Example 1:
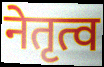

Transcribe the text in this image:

नेतृत्‍व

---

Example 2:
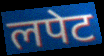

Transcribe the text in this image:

लपेट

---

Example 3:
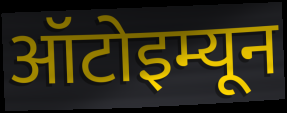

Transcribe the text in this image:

ऑटोइम्यून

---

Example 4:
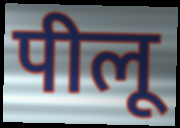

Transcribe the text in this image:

पीलू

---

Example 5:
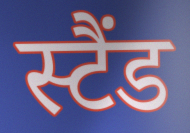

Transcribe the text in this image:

स्टैंड